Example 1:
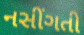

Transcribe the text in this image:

નસીંગતી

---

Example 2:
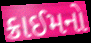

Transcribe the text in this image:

ક્રાઈમનો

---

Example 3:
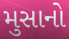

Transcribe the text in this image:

મુસાનો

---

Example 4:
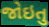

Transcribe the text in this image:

જોઇતુ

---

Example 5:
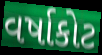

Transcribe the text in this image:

વર્ષાકોટ